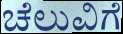
ಚೆಲುವಿಗೆ